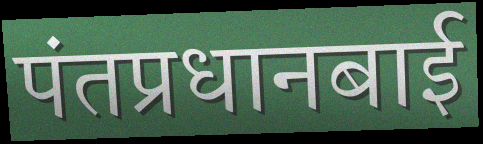
पंतप्रधानबाई